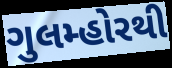
ગુલમ્હોરથી